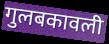
गुलबकावली